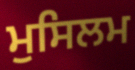
ਮੁਸਿਲਮ